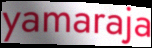
yamaraja